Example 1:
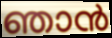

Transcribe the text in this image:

ഞാൻ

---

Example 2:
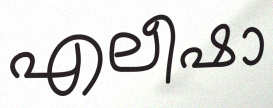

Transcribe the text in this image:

എലീഷാ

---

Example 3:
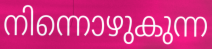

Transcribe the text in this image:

നിന്നൊഴുകുന്ന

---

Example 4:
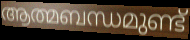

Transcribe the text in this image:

ആത്മബന്ധമുണ്ട്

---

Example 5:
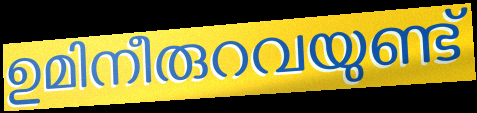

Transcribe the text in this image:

ഉമിനീരുറവയുണ്ട്